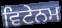
ਵਿਟੇਨਮ